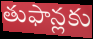
తుఫాన్లకు